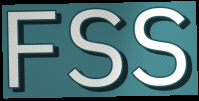
FSS